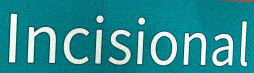
Incisional